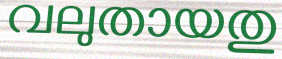
വലുതായതു